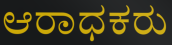
ಆರಾಧಕರು